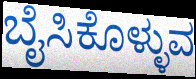
ಬೈಸಿಕೊಳ್ಳುವ